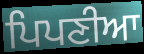
ਪਿਪਣੀਆ